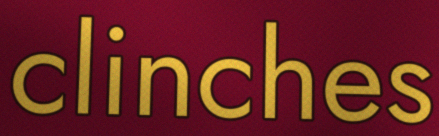
clinches